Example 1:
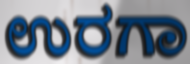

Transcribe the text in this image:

ಉರಗಾ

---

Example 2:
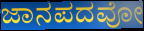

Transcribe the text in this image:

ಜಾನಪದವೋ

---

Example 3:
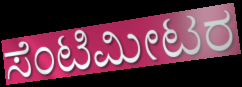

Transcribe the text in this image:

ಸೆಂಟಿಮೀಟರ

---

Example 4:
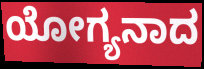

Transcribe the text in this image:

ಯೋಗ್ಯನಾದ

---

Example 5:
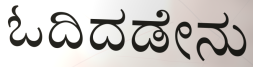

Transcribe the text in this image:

ಓದಿದಡೇನು